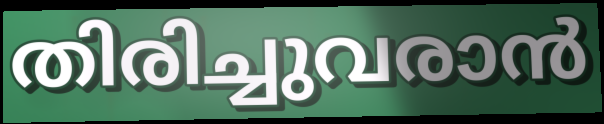
തിരിച്ചുവരാൻ